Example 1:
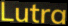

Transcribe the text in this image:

Lutra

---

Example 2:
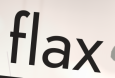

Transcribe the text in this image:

flax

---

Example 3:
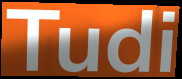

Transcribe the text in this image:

Tudi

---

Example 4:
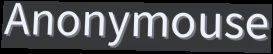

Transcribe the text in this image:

Anonymouse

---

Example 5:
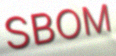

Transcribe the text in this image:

SBOM